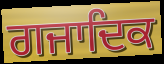
ਗਜਾਦਿਕ